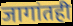
जागांतही